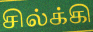
சில்க்கி